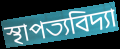
স্থাপত্যবিদ্যা